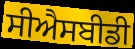
ਸੀਐਸਬੀਡੀ